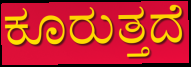
ಕೂರುತ್ತದೆ